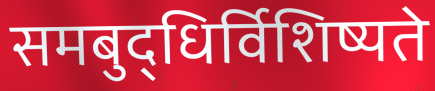
समबुद्धिर्विशिष्यते